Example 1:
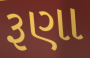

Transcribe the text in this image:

રૂણા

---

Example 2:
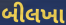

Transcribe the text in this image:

બીલખા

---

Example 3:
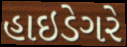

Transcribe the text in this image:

હાઇડેગરે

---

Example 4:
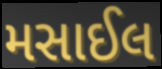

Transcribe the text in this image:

મસાઈલ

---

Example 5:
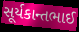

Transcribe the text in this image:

સૂર્યકાન્તભાઈ